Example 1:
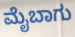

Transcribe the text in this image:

ಮೈಬಾಗು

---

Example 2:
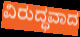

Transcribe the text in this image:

ವಿರುದ್ಧವಾದ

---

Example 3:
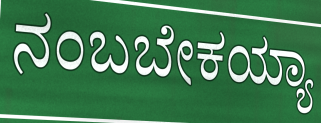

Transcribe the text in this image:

ನಂಬಬೇಕಯ್ಯಾ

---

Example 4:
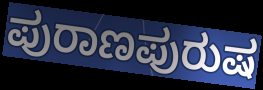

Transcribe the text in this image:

ಪುರಾಣಪುರುಷ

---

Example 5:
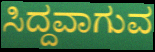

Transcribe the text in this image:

ಸಿದ್ದವಾಗುವ